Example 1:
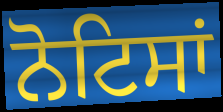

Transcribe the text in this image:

ਨੋਟਿਸਾਂ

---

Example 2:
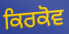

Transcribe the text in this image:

ਕਿਰਕੋਵ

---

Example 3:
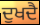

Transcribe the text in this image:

ਦੁਖਦੈ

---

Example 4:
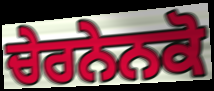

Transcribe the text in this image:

ਚੇਰਨੇਨਕੋ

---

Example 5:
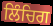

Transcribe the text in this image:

ਲਿੰਚਿਗ